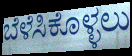
ಬೆಳೆಸಿಕೊಳ್ಳಲು